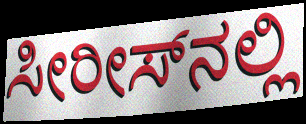
ಸೀರೀಸ್‌ನಲ್ಲಿ